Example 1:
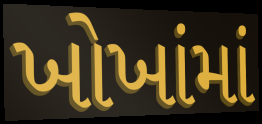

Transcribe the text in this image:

ખોખાંમાં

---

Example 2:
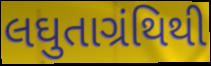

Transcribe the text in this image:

લઘુતાગ્રંથિથી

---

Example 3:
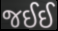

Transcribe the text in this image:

જઈઈ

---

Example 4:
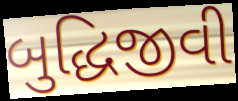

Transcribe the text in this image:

બુદ્ધિજીવી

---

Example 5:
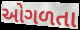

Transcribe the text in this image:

ઓગળતા